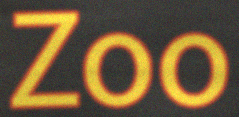
Zoo